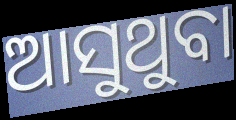
ଆସୁଥୁବା